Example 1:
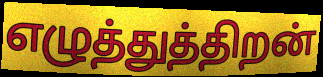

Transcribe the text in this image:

எழுத்துத்திறன்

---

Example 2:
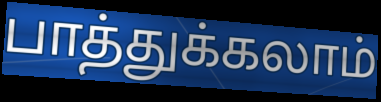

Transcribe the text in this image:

பாத்துக்கலாம்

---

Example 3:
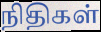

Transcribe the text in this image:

நிதிகள்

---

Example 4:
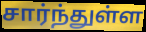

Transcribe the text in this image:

சார்ந்துள்ள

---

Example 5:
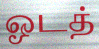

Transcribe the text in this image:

ஓடத்